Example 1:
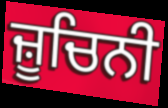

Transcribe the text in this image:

ਜ਼ੂਚਿਨੀ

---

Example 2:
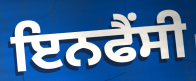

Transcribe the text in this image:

ਇਨਫੈਂਸੀ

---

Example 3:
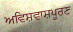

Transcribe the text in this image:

ਅਵਿਸ਼ਵਾਸ਼ਪੂਰਣ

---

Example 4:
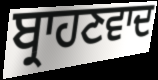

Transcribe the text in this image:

ਬ੍ਰਾਹਣਵਾਦ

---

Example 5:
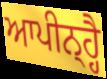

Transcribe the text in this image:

ਆਪੀਨ੍ਹ੍ਹੈ